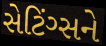
સેટિંગ્સને